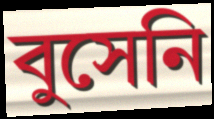
বুসেনি